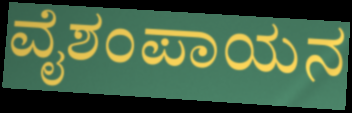
ವೈಶಂಪಾಯನ